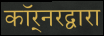
कॉर्नरद्वारा